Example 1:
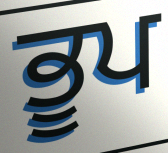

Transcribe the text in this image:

ਭੂਪ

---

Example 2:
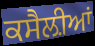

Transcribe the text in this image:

ਕਸੈਲ਼ੀਆਂ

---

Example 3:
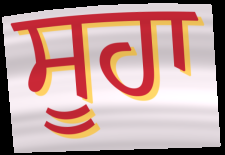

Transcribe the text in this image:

ਸੂਹਾ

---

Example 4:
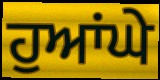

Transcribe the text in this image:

ਹੁਆਂਘੇ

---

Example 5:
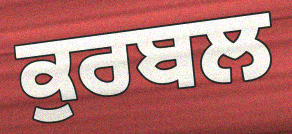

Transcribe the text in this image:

ਕੁਰਬਲ